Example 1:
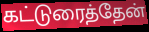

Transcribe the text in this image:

கட்டுரைத்தேன்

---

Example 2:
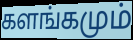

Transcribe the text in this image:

களங்கமும்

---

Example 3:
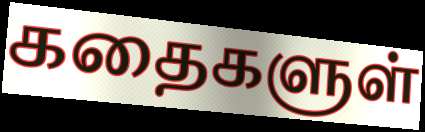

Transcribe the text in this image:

கதைகளுள்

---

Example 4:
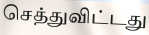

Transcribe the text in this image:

செத்துவிட்டது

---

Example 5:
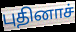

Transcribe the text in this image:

புதினாச்